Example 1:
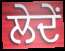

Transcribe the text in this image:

ਲੇਦੇਂ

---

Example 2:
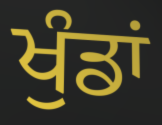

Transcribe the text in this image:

ਖੁੰਡਾਂ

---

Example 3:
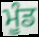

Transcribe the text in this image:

ਮੂੰਡ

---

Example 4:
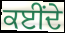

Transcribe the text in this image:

ਕਈਂਦੇ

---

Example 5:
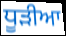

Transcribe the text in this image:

ਧੂੜੀਆ